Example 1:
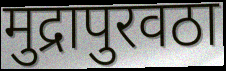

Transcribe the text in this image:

मुद्रापुरवठा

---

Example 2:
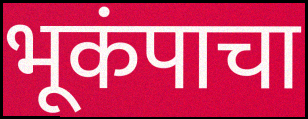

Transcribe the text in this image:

भूकंपाचा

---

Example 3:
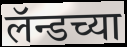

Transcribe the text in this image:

लॅन्डच्या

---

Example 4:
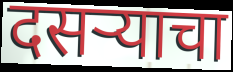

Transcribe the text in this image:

दसऱ्याचा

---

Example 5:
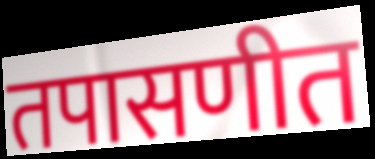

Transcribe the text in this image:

तपासणीत